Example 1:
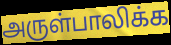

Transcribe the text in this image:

அருள்பாலிக்க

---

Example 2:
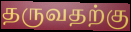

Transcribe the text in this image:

தருவதற்கு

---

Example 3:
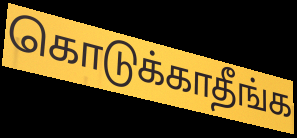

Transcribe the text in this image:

கொடுக்காதீங்க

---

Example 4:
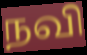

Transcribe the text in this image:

நவி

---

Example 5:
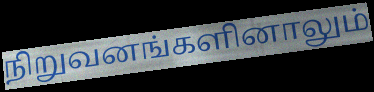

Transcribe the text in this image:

நிறுவனங்களினாலும்